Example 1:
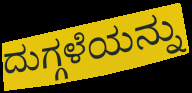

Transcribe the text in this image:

ದುಗ್ಗಳೆಯನ್ನು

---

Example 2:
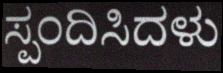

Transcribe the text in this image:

ಸ್ಪಂದಿಸಿದಳು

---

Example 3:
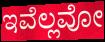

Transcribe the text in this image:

ಇವೆಲ್ಲವೋ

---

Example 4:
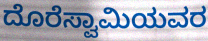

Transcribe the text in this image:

ದೊರೆಸ್ವಾಮಿಯವರ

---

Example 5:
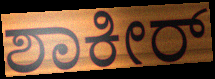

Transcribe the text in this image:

ಶಾಕೀರ್